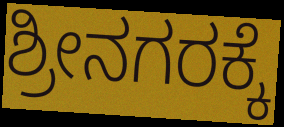
ಶ್ರೀನಗರಕ್ಕೆ